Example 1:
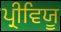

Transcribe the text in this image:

ਪ੍ਰੀਵਿਯੂ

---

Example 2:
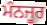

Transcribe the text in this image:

ਮੰਨਜੂਰ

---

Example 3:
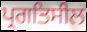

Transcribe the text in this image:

ਪ੍ਰਗਤਿਸੀਲ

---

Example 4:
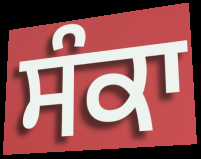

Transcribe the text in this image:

ਸੰਕਾ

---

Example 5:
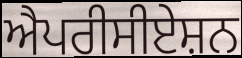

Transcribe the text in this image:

ਐਪਰੀਸੀਏਸ਼ਨ